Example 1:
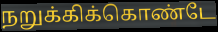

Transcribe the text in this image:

நறுக்கிக்கொண்டே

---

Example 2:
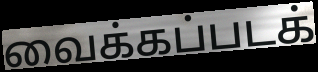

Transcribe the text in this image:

வைக்கப்படக்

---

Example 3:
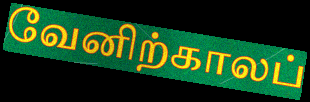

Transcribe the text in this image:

வேனிற்காலப்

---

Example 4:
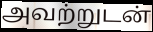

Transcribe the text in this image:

அவற்றுடன்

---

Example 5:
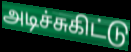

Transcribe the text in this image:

அடிச்சுகிட்டு